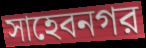
সাহেবনগর